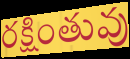
రక్షింతువు